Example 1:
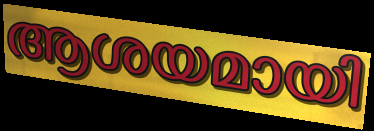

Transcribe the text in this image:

ആശയമായി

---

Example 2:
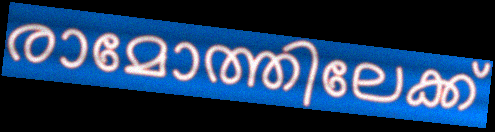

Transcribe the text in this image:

രാമോത്തിലേക്ക്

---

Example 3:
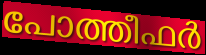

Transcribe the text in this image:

പോത്തീഫർ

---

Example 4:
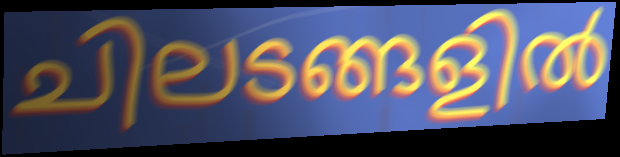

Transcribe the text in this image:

ചിലടങ്ങളിൽ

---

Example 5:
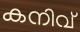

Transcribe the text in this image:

കനിവ്